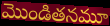
మొండితనమూ